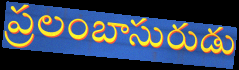
ప్రలంబాసురుడు